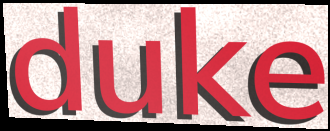
duke